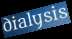
dialysis